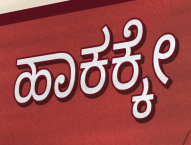
ಹಾಕಕ್ಕೇ